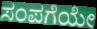
ಸಂಪಗೆಯೇ